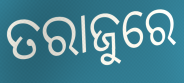
ତରାଜୁରେ